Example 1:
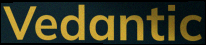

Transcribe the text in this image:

Vedantic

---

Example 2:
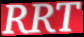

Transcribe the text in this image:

RRT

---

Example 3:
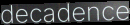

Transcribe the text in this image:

decadence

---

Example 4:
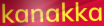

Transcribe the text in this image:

kanakka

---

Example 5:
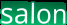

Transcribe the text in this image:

salon